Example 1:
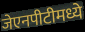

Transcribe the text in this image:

जेएनपीटीमध्ये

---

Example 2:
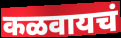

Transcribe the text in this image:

कळवायचं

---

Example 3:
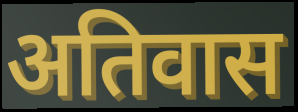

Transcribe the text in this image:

अतिवास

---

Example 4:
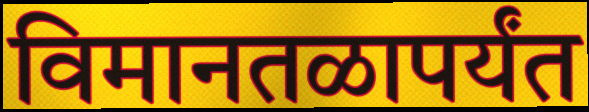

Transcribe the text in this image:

विमानतळापर्यंत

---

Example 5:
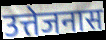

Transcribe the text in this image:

उत्तेजनास